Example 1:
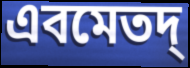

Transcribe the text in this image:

এবমেতদ্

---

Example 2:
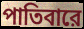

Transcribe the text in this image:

পাতিবারে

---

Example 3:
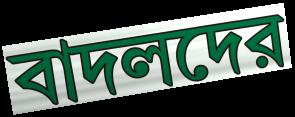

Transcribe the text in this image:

বাদলদের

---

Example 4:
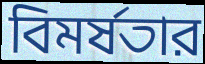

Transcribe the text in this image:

বিমর্ষতার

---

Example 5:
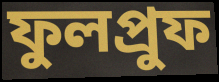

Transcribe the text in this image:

ফুলপ্রুফ